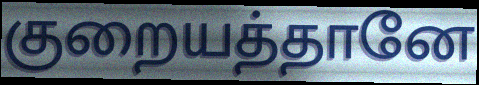
குறையத்தானே